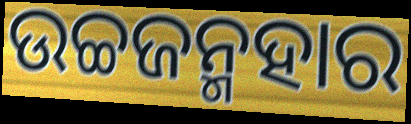
ଉଚ୍ଚଜନ୍ମହାର